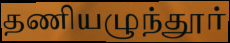
தணியழுந்தூர்